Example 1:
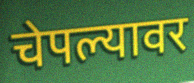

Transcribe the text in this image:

चेपल्यावर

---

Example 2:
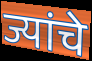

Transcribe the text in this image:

ज्यांचे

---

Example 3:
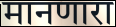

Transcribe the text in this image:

मानणारा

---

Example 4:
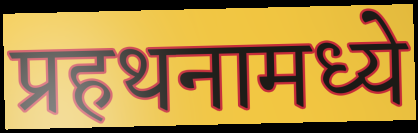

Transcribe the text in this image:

प्रहथनामध्ये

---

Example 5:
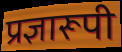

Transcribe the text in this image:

प्रज्ञारूपी